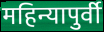
महिन्यापुर्वी